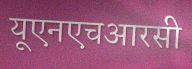
यूएनएचआरसी